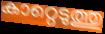
കാറ്റെടുത്തു